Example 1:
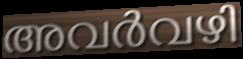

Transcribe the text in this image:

അവർവഴി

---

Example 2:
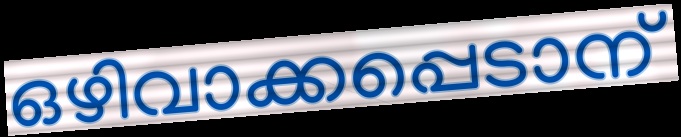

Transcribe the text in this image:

ഒഴിവാക്കപ്പെടാന്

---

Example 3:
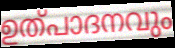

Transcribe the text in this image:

ഉത്പാദനവും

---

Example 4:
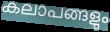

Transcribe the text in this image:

കലാപങ്ങളും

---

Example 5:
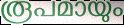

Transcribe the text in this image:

രൂപമായും